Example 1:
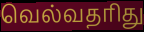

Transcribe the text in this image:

வெல்வதரிது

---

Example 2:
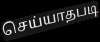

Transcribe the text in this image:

செய்யாதபடி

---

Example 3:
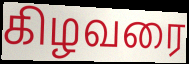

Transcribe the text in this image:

கிழவரை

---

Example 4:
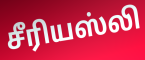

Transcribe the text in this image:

சீரியஸ்லி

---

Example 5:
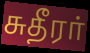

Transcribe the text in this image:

சுதீரர்